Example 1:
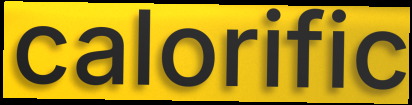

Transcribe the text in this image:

calorific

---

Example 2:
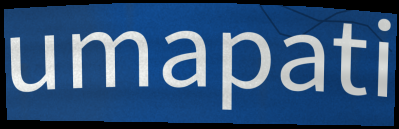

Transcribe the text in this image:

umapati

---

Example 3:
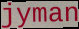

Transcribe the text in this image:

jyman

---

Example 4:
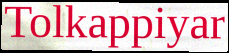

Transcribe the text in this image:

Tolkappiyar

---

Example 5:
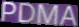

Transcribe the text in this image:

PDMA